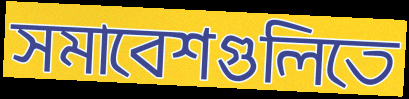
সমাবেশগুলিতে